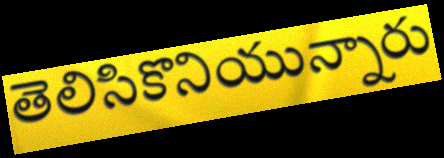
తెలిసికొనియున్నారు